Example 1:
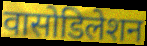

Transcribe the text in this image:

वासोडिलेशन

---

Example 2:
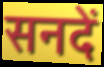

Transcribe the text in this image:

सनदें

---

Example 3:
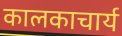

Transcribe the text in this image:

कालकाचार्य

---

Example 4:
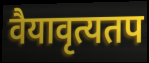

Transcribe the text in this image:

वैयावृत्यतप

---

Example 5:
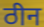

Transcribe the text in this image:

ठीन